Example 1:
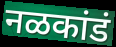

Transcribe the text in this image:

नळकांडं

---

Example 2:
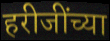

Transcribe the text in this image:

हरीजींच्या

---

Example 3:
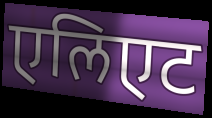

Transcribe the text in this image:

एलिएट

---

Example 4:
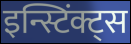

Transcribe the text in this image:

इन्स्टिंक्ट्स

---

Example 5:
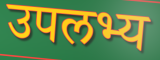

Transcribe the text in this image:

उपलभ्य